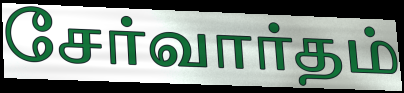
சேர்வார்தம்